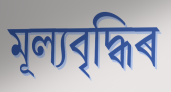
মূল্যবৃদ্ধিৰ